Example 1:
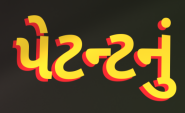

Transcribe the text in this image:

પેટન્ટનું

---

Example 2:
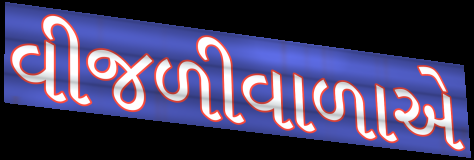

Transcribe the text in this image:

વીજળીવાળાએ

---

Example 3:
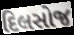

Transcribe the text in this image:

દિલસોજ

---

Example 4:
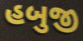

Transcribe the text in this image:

હબુજી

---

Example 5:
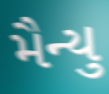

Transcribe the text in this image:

મૈન્યુ